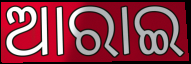
ଆରାଇ